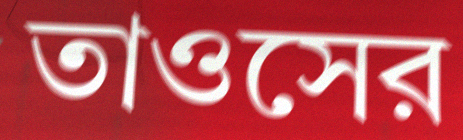
তাওসের